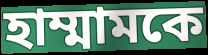
হাম্মামকে